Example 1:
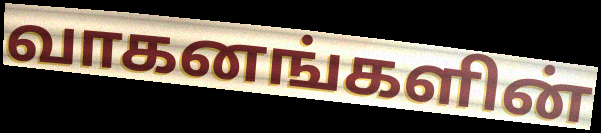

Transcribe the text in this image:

வாகனங்களின்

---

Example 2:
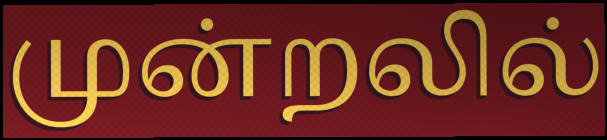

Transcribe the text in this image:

முன்றலில்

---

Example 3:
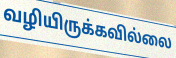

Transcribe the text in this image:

வழியிருக்கவில்லை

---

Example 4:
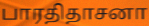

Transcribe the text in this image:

பாரதிதாசனா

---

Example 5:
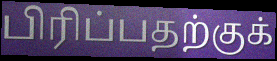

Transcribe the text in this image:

பிரிப்பதற்குக்